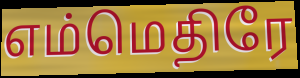
எம்மெதிரே